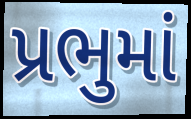
પ્રભુમાં